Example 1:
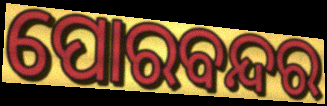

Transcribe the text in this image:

ପୋରବନ୍ଦର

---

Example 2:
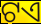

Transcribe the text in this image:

ଟଏ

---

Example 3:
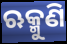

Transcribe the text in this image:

ଋକ୍ମୁଣି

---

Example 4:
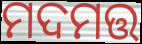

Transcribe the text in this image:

ମଦମତ୍ତ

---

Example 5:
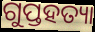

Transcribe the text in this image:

ଗୁପ୍ତହତ୍ୟା